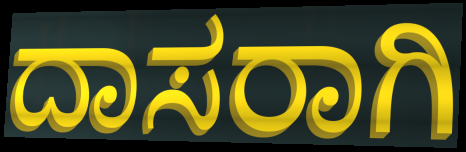
ದಾಸರಾಗಿ